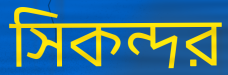
সিকন্দর